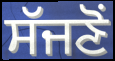
ਸੱਜਣੋਂ